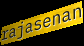
rajasenan